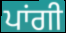
ਪਾਂਗੀ